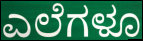
ಎಲೆಗಳೂ